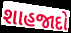
શાહજાદો